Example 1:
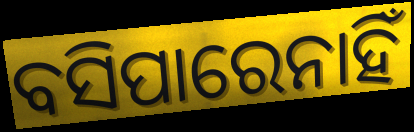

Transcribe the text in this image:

ବସିପାରେନାହିଁ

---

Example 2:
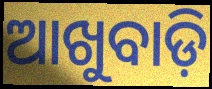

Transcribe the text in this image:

ଆଖୁବାଡ଼ି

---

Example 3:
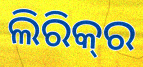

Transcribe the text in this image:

ଲିରିକ୍‍ର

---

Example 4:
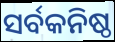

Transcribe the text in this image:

ସର୍ବକନିଷ୍ଠ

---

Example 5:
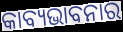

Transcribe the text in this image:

କାବ୍ୟଭାବନାର